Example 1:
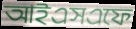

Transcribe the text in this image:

আইএসএফে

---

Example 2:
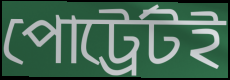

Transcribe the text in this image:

পোর্ট্রেটই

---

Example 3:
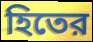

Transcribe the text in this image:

হিতের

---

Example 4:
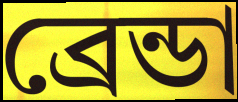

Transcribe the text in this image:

ব্রেন্ডা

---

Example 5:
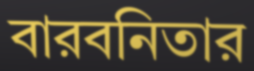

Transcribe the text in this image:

বারবনিতার